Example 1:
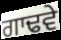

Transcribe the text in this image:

ਗਾਢਵੇ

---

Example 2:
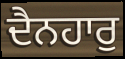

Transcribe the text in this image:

ਦੈਨਹਾਰੁ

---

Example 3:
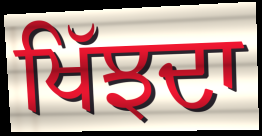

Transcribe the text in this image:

ਖਿੱਝਦਾ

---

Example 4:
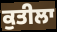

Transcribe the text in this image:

ਕੁਤੀਲਾ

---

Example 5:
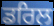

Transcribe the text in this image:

ਡਰਿਲ